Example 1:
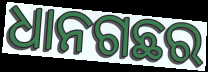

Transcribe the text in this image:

ଧାନଗଛର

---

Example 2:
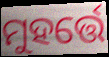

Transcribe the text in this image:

ମୁହର୍ତ୍ତେ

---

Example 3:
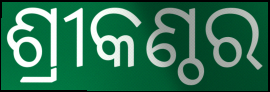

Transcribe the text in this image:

ଶ୍ରୀକଣ୍ଠର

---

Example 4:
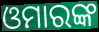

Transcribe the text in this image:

ଓମାରଙ୍କ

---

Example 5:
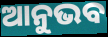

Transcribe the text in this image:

ଆନୁଭବ